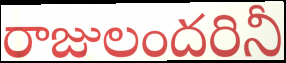
రాజులందరినీ